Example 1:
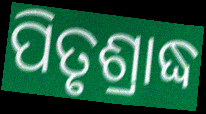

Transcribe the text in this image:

ପିତୃଶ୍ରାଦ୍ଧ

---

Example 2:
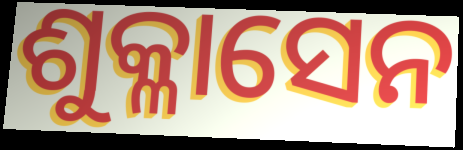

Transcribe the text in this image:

ଶୁକ୍ଳାସେନ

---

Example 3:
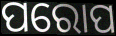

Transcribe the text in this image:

ପରୋପ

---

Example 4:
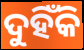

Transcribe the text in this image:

ଦୁହିଁକି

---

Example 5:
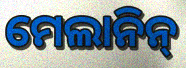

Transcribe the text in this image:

ମେଲାନିନ୍